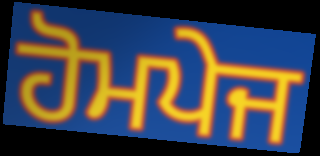
ਹੋਮਪੇਜ